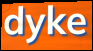
dyke